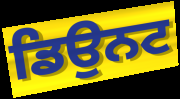
ਡਿਉਨਟ